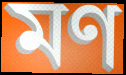
মণ